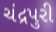
ચંદ્રપુરી